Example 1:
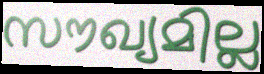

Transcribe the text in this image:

സൗഖ്യമില്ല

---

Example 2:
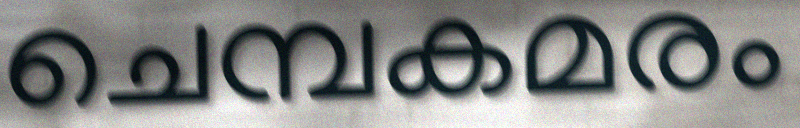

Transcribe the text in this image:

ചെമ്പകമരം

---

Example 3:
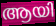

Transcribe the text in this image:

ആയി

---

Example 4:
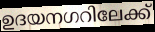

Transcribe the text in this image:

ഉദയനഗറിലേക്ക്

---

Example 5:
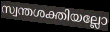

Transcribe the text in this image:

സ്വന്തശക്തിയല്ലോ